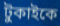
টুকাইকে